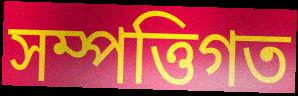
সম্পত্তিগত